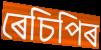
ৰেচিপিৰ